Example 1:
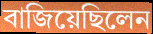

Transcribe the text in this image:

বাজিয়েছিলেন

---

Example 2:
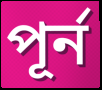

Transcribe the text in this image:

পূর্ন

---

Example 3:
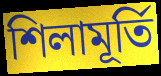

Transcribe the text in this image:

শিলামূর্তি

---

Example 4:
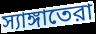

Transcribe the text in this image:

স্যাঙ্গাতেরা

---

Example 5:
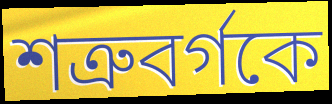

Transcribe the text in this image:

শত্রুবর্গকে